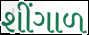
શીંગાળ